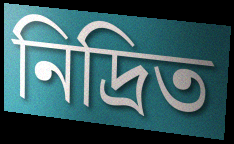
নিদ্রিত